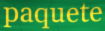
paquete